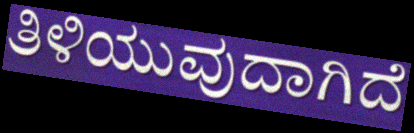
ತಿಳಿಯುವುದಾಗಿದೆ